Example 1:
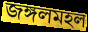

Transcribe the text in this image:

জঙ্গলমহল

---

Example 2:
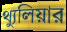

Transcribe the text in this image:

থ্যুলিয়ার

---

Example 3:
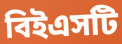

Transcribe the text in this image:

বিইএসটি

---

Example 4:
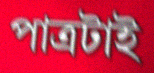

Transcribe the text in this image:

পাত্রটাই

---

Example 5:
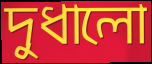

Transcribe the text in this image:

দুধালো